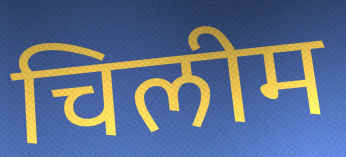
चिलीम